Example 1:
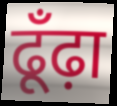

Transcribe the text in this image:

ढूँढ़ा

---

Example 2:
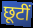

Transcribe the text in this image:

छूटीं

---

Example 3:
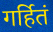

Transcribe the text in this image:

गर्हितं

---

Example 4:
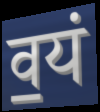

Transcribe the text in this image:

व॒यं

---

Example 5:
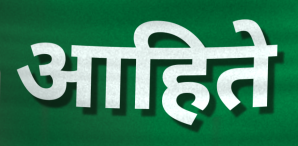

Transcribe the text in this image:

आहिते